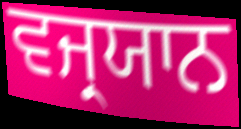
ਵਜ੍ਰਯਾਨ